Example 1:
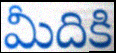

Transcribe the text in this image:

మీదికి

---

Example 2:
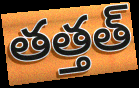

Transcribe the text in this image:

తత్తత్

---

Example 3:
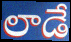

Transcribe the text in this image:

లాడే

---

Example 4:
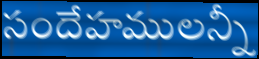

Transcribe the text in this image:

సందేహములన్నీ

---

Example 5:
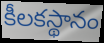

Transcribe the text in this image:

కీలకస్థానం